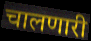
चालणारी